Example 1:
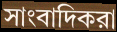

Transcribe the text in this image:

সাংবাদিকরা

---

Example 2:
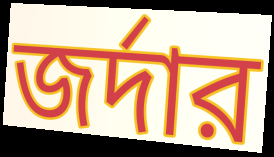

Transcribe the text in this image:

জর্দার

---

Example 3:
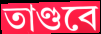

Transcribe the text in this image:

তাণ্ডবে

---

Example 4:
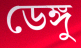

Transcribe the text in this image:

ডেঙ্গু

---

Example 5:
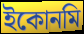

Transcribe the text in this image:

ইকোনমি